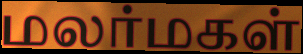
மலர்மகள்